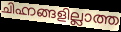
ചിഹ്നങ്ങളില്ലാത്ത